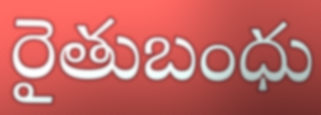
రైతుబంధు